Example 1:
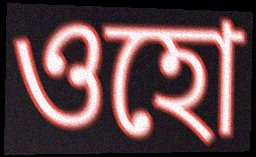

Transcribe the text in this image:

ওহো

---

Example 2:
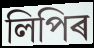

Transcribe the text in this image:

লিপিৰ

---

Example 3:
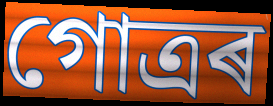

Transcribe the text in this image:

গোত্ৰৰ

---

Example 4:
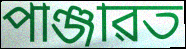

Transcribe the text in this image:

পাঞ্জাৱত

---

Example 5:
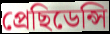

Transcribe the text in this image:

প্ৰেছিডেন্সি